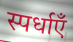
स्पर्धाएँ